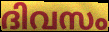
ദിവസം